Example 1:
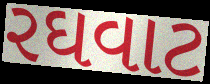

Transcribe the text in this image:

રઘવાટ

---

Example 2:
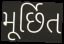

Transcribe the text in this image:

મૂર્છિત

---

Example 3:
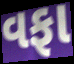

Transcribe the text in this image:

વફા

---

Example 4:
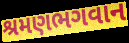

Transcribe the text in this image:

શ્રમણભગવાન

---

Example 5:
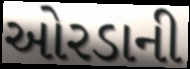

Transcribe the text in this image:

ઓરડાની